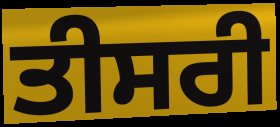
ਤੀਸਰੀ